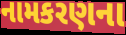
નામકરણના